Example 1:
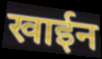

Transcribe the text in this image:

खाईन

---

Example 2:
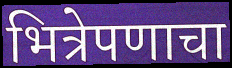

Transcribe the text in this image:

भित्रेपणाचा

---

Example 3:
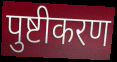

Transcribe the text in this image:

पुष्टीकरण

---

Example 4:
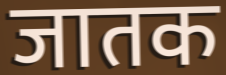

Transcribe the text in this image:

जातक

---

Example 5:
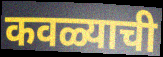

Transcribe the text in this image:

कवळ्याची